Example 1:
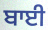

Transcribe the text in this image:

ਬਾਈ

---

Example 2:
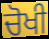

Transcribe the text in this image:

ਚੋਖੀ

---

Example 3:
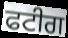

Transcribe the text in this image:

ਫਟੀਗ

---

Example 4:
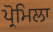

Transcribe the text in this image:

ਪ੍ਰੋਮਿਲਾ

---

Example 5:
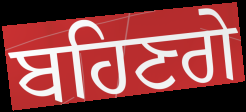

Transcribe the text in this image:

ਬਹਿਣਗੇ